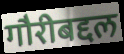
गौरीबद्दल